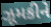
ઝૂમકીને